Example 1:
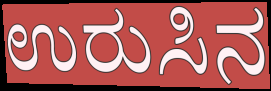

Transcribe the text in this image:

ಉರುಸಿನ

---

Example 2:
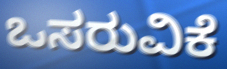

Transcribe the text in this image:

ಒಸರುವಿಕೆ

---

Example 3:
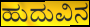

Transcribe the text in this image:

ಹುದುವಿನ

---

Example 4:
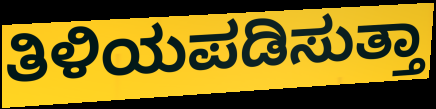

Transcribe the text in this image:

ತಿಳಿಯಪಡಿಸುತ್ತಾ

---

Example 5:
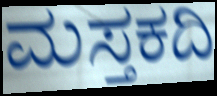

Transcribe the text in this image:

ಮಸ್ತಕದಿ